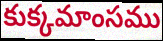
కుక్కమాంసము